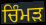
ਚਿੰਮੜ